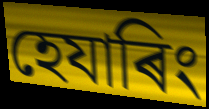
হেযাৰিং